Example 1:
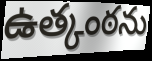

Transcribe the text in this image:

ఉత్కంఠను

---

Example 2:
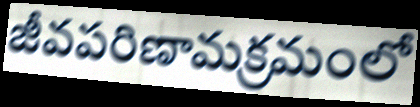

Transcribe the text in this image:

జీవపరిణామక్రమంలో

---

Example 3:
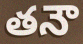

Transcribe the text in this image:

తనౌ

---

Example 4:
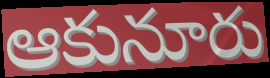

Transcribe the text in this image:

ఆకునూరు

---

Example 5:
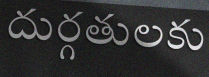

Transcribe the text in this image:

దుర్గతులకు